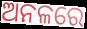
ଅନଳରେ